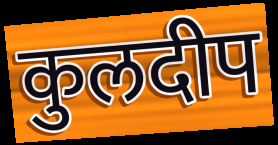
कुलदीप